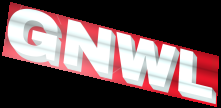
GNWL